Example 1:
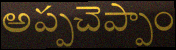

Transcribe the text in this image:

అప్పచెప్పాం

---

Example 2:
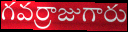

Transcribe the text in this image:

గవర్రాజుగారు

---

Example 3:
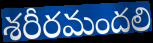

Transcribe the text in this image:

శరీరమందలి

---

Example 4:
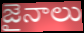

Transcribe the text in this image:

జైనాలు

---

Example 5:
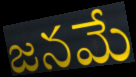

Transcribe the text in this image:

జనమే